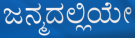
ಜನ್ಮದಲ್ಲಿಯೇ